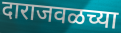
दाराजवळच्या